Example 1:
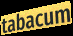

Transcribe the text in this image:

tabacum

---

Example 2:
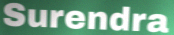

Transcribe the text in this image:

Surendra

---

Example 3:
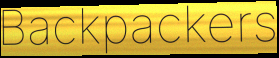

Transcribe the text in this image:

Backpackers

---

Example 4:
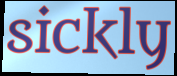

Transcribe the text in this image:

sickly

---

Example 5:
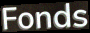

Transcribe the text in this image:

Fonds